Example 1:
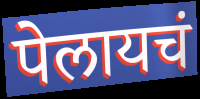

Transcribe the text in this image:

पेलायचं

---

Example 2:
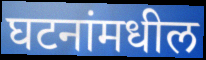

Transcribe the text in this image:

घटनांमधील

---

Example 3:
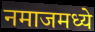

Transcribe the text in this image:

नमाजमध्ये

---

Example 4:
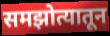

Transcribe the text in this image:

समझोत्यातून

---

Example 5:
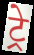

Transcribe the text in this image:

ट्रे